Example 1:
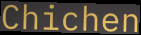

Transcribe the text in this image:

Chichen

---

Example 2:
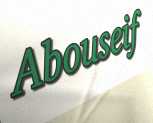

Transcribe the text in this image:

Abouseif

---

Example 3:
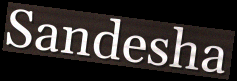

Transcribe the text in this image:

Sandesha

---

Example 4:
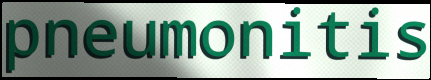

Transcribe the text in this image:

pneumonitis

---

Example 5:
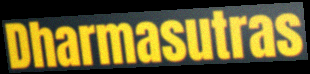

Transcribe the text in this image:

Dharmasutras